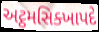
અટ્ઠમસિક્ખાપદે